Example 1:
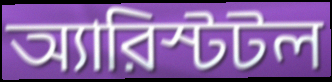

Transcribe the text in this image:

অ্যারিস্টটল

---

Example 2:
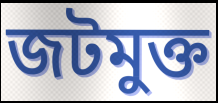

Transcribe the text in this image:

জটমুক্ত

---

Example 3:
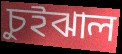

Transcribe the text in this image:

চুইঝাল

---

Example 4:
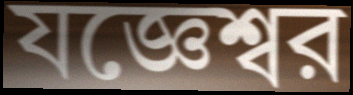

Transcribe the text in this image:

যজ্ঞেশ্বর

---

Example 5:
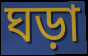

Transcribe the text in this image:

ঘড়া